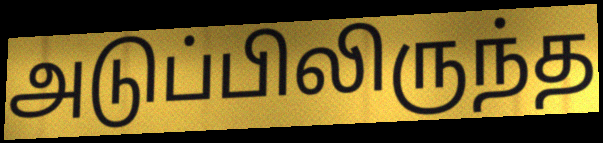
அடுப்பிலிருந்த